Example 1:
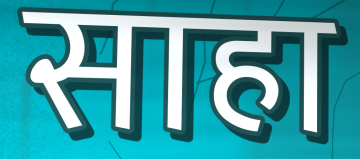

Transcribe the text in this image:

साहा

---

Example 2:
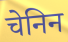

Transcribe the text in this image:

चेनिन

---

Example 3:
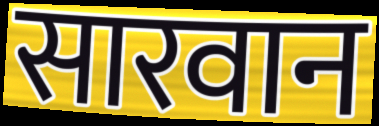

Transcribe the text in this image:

सारवान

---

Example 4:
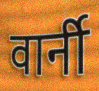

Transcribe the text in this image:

वार्नी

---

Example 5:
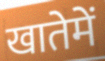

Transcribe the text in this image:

खातेमें